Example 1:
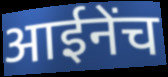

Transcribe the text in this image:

आईनेंच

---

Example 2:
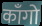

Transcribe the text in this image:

काँगो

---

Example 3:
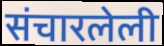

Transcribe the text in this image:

संचारलेली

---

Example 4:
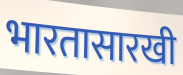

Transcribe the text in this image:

भारतासारखी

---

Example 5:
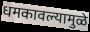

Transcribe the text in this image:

धमकावल्यामुळे